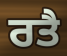
ਰਤੈ